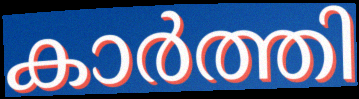
കാർത്തി